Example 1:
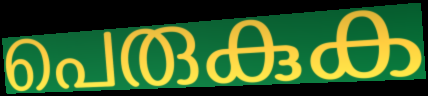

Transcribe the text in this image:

പെരുകുക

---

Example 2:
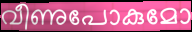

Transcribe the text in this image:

വീണുപോകുമോ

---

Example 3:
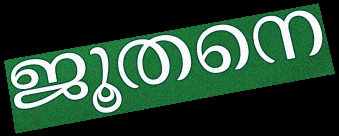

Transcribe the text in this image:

ജൂതനെ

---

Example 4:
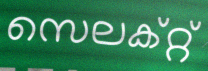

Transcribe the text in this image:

സെലക്റ്റ്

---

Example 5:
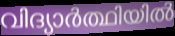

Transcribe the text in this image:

വിദ്യാർത്ഥിയിൽ